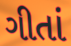
ગીતાં